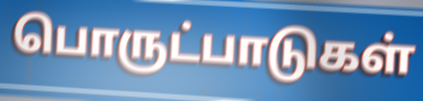
பொருட்பாடுகள்